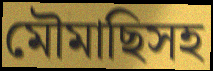
মৌমাছিসহ